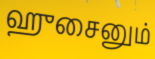
ஹுசைனும்